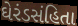
ઘેરંડસંહિતા